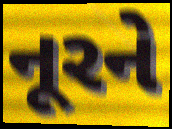
નૂરને